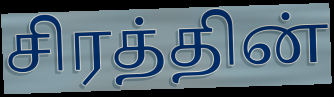
சிரத்தின்